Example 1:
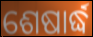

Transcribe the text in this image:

ଶେଷାର୍ଦ୍ଧ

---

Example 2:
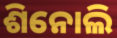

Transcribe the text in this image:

ଶିନୋଲି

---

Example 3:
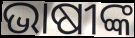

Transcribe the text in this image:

ଭାଷୀଙ୍କ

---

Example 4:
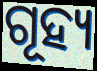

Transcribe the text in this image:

ଗୂହ୍ୟ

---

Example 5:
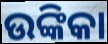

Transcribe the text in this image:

ଉଙ୍କିକା